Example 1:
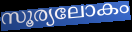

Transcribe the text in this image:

സൂര്യലോകം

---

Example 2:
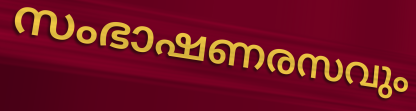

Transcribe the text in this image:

സംഭാഷണരസവും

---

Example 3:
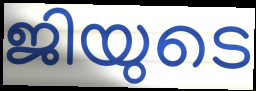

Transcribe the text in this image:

ജിയുടെ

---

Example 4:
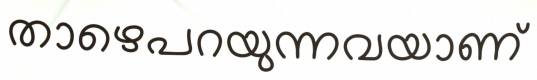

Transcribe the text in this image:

താഴെപറയുന്നവയാണ്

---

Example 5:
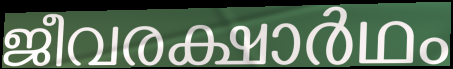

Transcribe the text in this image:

ജീവരക്ഷാർഥം